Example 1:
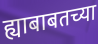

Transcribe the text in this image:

ह्याबाबतच्या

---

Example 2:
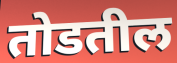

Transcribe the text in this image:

तोडतील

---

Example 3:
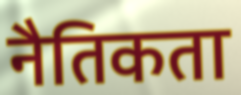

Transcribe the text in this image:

नैतिकता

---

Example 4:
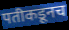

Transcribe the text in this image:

पतीकडूनच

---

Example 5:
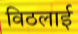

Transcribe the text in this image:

विठलाई